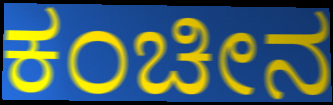
ಕಂಚೀನ